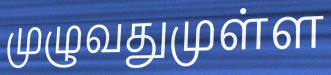
முழுவதுமுள்ள